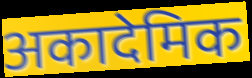
अकादेमिक